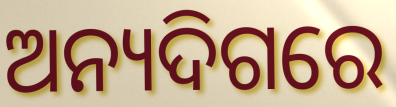
ଅନ୍ୟଦିଗରେ